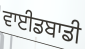
ਵਾਈਡਬਾਡੀ